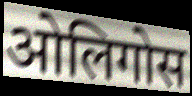
ओलिगोस